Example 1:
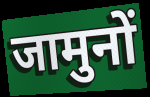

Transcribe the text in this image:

जामुनों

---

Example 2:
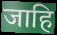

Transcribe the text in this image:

जाहि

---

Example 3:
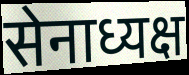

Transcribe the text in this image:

सेनाध्यक्ष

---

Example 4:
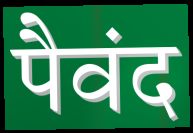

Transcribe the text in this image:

पैवंद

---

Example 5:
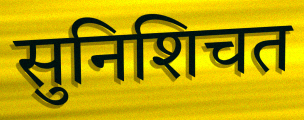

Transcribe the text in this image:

सुनिशिचत